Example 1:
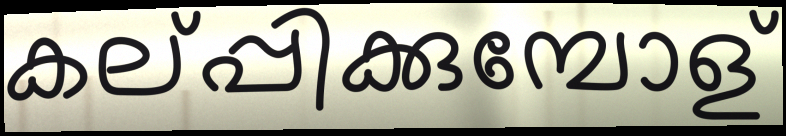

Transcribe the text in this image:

കല്പ്പിക്കുമ്പോള്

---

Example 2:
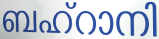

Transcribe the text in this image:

ബഹ്റാനി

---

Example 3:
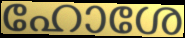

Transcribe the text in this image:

ഹോശേ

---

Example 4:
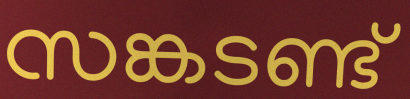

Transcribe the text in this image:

സങ്കടണ്ട്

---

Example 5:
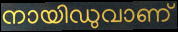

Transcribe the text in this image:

നായിഡുവാണ്